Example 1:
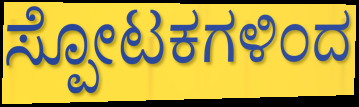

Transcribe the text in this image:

ಸ್ಪೋಟಕಗಳಿಂದ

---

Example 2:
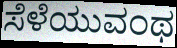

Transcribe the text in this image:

ಸೆಳೆಯುವಂಥ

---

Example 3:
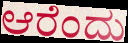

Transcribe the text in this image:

ಆರೆಂದು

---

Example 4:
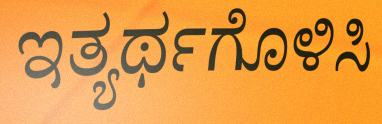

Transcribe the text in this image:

ಇತ್ಯರ್ಥಗೊಳಿಸಿ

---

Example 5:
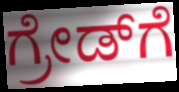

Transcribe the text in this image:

ಗ್ರೇಡ್‌ಗೆ